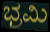
ಭ್ರಮಿ